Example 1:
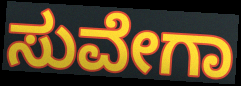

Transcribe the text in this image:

ಸುವೇಗಾ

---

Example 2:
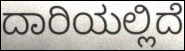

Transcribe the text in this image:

ದಾರಿಯಲ್ಲಿದೆ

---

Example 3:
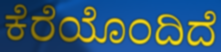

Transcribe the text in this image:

ಕೆರೆಯೊಂದಿದೆ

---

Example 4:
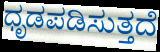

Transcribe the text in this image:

ಧೃಡಪಡಿಸುತ್ತದೆ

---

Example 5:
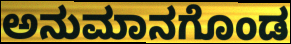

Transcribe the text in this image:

ಅನುಮಾನಗೊಂಡ